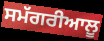
ਸਮੱਗਰੀਆਲੂ